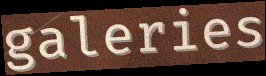
galeries